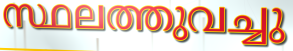
സ്ഥലത്തുവച്ചു